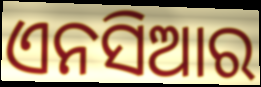
ଏନସିଆର